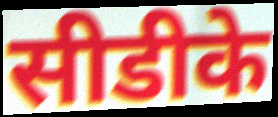
सीडीके